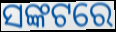
ସଙ୍କଟରେ